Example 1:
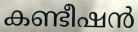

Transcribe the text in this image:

കണ്ടീഷൻ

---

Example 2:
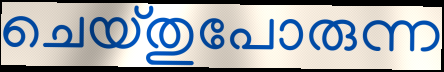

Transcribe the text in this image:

ചെയ്തുപോരുന്ന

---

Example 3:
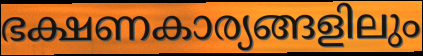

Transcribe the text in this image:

ഭക്ഷണകാര്യങ്ങളിലും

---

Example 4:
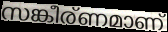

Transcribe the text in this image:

സങ്കീര്ണമാണ്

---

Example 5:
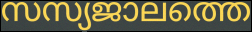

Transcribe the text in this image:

സസ്യജാലത്തെ